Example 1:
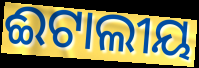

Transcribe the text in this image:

ଈଟାଲୀୟ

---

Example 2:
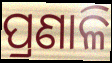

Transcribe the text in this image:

ପ୍ରଣାଳି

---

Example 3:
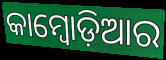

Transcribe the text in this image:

କାମ୍ବୋଡ଼ିଆର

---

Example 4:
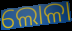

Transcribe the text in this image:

ଲୋଳା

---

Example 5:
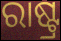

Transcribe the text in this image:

ରାଷ୍ଟ୍ର